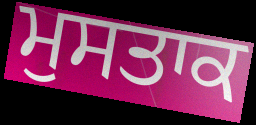
ਮੁਸਤਾਕ